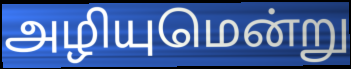
அழியுமென்று